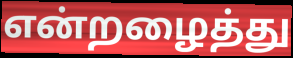
என்றழைத்து